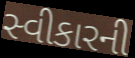
સ્વીકારની